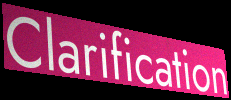
Clarification